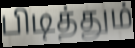
பிடித்தும்